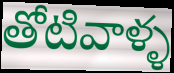
తోటివాళ్ళ